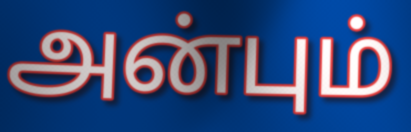
அன்பும்